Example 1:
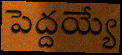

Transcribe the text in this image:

పెద్దయ్యే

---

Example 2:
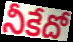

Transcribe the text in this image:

నీకేదో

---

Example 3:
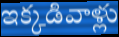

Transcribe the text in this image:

ఇక్కడివాళ్లు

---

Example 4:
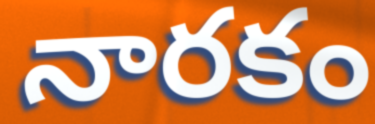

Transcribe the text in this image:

నారకం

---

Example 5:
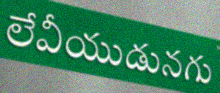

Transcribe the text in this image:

లేవీయుడునగు